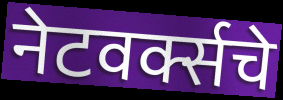
नेटवर्क्सचे